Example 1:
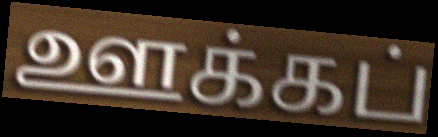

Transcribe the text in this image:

ஊக்கப்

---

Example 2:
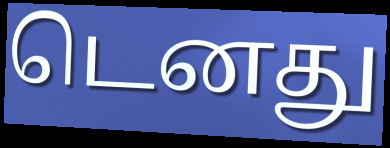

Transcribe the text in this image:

டெனது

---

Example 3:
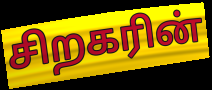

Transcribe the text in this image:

சிறகரின்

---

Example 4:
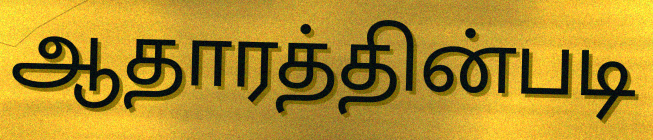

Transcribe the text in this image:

ஆதாரத்தின்படி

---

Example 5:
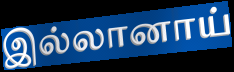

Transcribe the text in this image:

இல்லானாய்